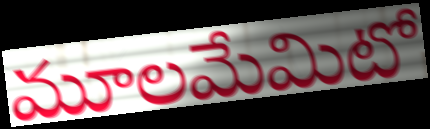
మూలమేమిటో